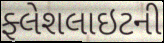
ફ્લેશલાઇટની